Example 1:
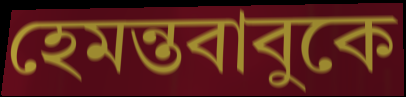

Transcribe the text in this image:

হেমন্তবাবুকে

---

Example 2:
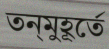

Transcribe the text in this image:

তন্‌মুহূর্তে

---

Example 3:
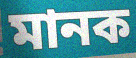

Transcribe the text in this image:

মানক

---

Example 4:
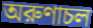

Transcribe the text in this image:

অরুণাচল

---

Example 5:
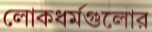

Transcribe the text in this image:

লোকধর্মগুলোর